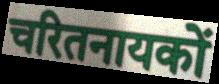
चरितनायकों